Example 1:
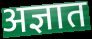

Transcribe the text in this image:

अज्ञात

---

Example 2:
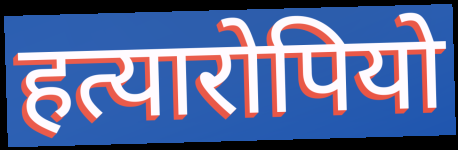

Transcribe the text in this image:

हत्यारोपियो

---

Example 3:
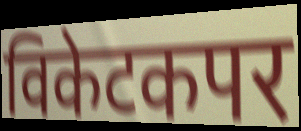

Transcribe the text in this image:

विकेटकपर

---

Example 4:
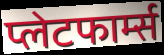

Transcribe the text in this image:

प्लेटफार्म्स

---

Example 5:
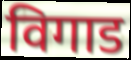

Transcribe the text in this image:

विगाड